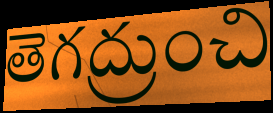
తెగద్రుంచి